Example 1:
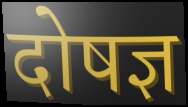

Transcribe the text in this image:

दोषज्ञ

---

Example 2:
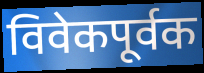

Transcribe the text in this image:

विवेकपूर्वक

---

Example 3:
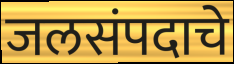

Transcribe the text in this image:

जलसंपदाचे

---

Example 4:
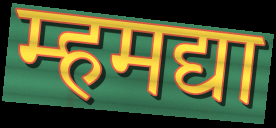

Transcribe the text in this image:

म्हमद्या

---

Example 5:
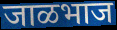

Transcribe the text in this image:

जाळभाज